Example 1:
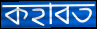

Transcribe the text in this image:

কহাবত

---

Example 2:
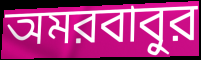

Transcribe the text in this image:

অমরবাবুর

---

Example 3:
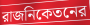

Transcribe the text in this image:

রাজনিকেতনের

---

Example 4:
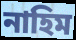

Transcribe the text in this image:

নাহিম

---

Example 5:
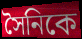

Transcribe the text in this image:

সৈনিকে